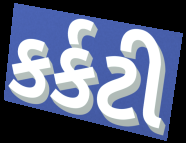
કર્કટી